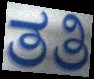
ತತಿ